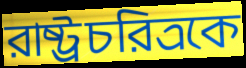
রাষ্ট্রচরিত্রকে